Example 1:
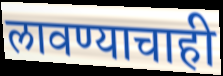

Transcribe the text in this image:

लावण्याचाही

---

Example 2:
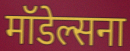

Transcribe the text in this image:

मॉडेल्सना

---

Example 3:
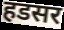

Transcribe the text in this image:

हडसर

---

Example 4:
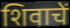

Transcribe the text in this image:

शिवाचें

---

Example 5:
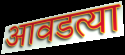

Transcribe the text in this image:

आवडत्या